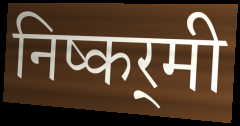
निष्कर्मी